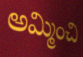
అమ్మించి